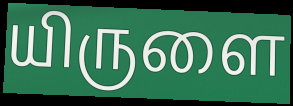
யிருளை